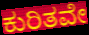
ಕುರಿತವೇ